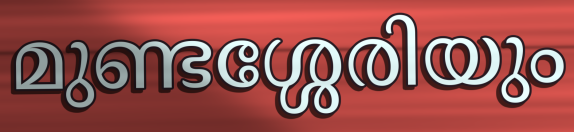
മുണ്ടശ്ശേരിയും